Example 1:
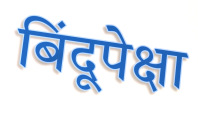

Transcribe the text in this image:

बिंदूपेक्षा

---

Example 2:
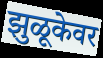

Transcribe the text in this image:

झुळूकेवर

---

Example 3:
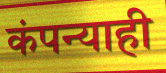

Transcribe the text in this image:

कंपन्याही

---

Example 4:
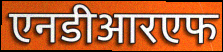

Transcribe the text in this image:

एनडीआरएफ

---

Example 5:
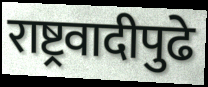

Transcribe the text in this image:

राष्ट्रवादीपुढे